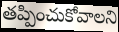
తప్పించుకోవాలని